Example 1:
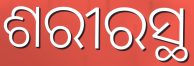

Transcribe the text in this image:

ଶରୀରସ୍ଥ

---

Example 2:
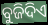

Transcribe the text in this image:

ବୁଜିଦିଏ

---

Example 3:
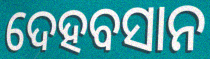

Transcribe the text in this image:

ଦେହବସାନ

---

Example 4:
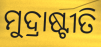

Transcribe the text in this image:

ମୁଦ୍ରାଷ୍ଟୀତି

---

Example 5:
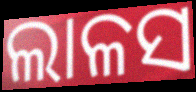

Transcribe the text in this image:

ଲାଳସ